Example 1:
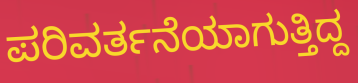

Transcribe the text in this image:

ಪರಿವರ್ತನೆಯಾಗುತ್ತಿದ್ದ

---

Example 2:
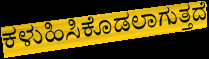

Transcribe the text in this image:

ಕಳುಹಿಸಿಕೊಡಲಾಗುತ್ತದೆ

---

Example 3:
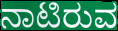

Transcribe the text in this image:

ನಾಟಿರುವ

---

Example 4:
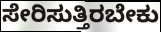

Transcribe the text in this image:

ಸೇರಿಸುತ್ತಿರಬೇಕು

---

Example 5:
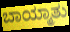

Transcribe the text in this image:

ಬಾಯ್ಮಾತು